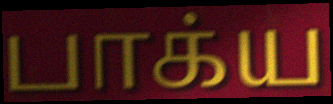
பாக்ய